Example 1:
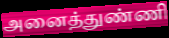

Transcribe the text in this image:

அனைத்துண்ணி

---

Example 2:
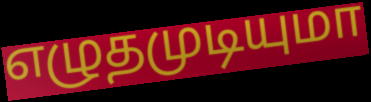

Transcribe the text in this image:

எழுதமுடியுமா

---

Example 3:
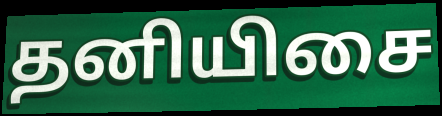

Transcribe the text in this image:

தனியிசை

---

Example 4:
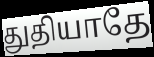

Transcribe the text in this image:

துதியாதே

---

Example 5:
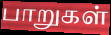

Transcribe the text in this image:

பாறுகள்